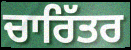
ਚਾਰਿੱਤਰ